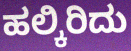
ಹಲ್ಕಿರಿದು